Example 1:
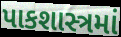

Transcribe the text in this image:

પાકશાસ્ત્રમાં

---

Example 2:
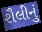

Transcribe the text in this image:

શૈલીનું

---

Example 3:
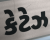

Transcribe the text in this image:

કેટેઝ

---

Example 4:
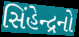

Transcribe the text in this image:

સિંહેન્દ્રનો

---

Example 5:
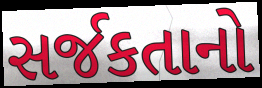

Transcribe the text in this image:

સર્જકતાનો